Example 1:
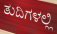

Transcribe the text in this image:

ತುದಿಗಳಲ್ಲಿ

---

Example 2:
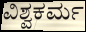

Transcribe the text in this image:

ವಿಶ್ವಕರ್ಮ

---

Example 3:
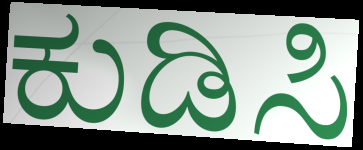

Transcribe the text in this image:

ಕುಡಿಸಿ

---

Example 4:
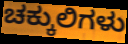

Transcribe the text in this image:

ಚಕ್ಕುಲಿಗಳು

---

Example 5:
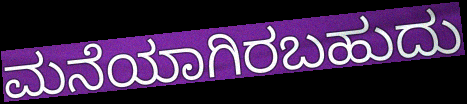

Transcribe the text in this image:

ಮನೆಯಾಗಿರಬಹುದು